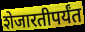
शेजारतीपर्यंत